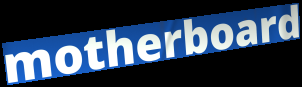
motherboard